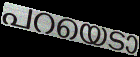
പറയെടാ